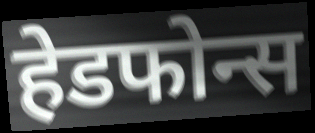
हेडफोन्स